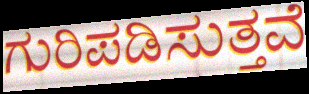
ಗುರಿಪಡಿಸುತ್ತವೆ